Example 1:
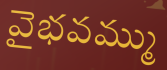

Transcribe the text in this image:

వైభవమ్ము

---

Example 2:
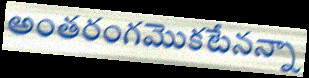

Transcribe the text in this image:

అంతరంగమొకటేనన్నా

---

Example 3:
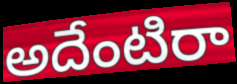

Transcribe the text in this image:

అదేంటిరా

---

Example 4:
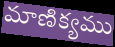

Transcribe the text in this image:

మాణిక్యము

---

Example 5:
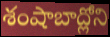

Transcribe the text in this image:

శంషాబాద్లోని